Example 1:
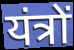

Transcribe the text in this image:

यंत्रों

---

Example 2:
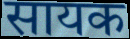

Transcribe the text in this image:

सायक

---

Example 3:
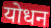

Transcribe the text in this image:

योधन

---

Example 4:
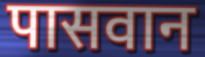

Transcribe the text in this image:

पासवान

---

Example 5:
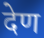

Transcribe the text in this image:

देण